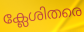
ക്ലേശിതരെ